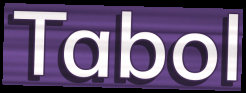
Tabol